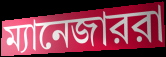
ম্যানেজাররা